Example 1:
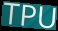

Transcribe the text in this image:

TPU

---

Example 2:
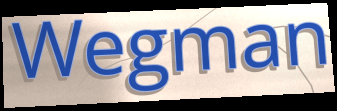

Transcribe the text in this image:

Wegman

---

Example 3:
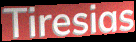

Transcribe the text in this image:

Tiresias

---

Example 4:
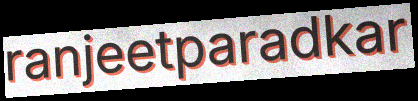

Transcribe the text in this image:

ranjeetparadkar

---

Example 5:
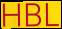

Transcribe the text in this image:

HBL